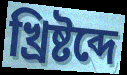
খ্রিষ্টব্দে